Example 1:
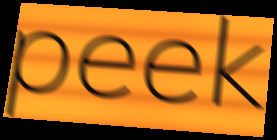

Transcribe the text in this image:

peek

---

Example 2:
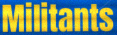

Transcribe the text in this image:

Militants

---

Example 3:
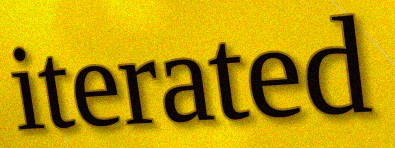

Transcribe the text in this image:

iterated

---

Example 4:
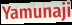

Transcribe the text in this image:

Yamunaji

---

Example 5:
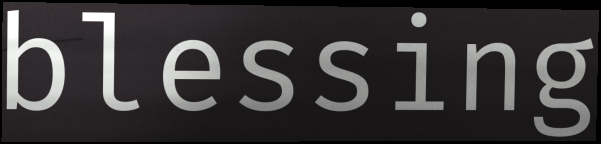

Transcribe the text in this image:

blessing